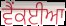
ਵੈਂਕਈਆ